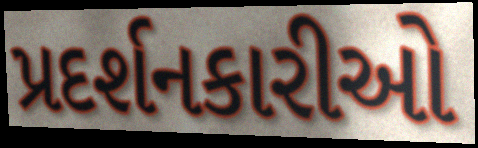
પ્રદર્શનકારીઓ